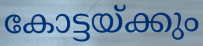
കോട്ടയ്ക്കും